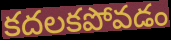
కదలకపోవడం